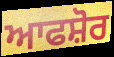
ਆਫਸ਼ੋਰ